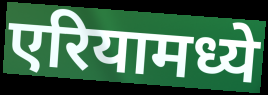
एरियामध्ये